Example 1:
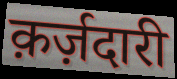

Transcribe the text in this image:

क़र्ज़दारी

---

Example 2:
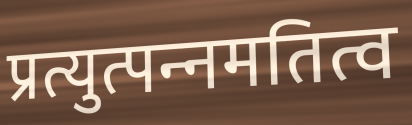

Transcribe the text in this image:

प्रत्युत्पन्नमतित्व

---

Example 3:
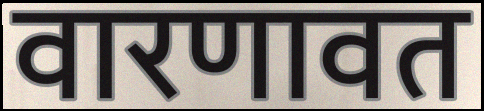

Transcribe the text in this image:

वारणावत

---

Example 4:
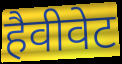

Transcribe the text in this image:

हैवीवेट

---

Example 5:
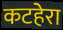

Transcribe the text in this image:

कटहेरा